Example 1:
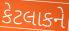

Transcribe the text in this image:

કેટલાકને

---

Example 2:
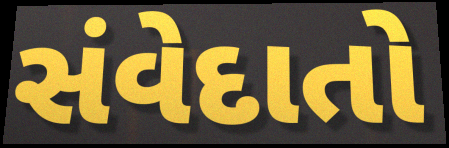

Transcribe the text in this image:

સંવેદાતો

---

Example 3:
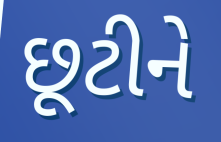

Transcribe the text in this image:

છૂટીને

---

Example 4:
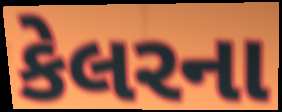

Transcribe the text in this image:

કેલરના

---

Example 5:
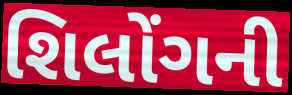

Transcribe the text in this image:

શિલોંગની